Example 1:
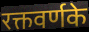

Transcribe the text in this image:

रक्तवर्णके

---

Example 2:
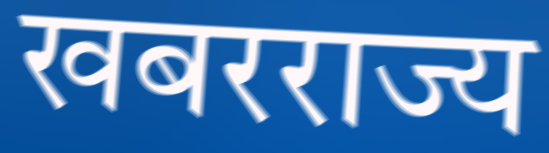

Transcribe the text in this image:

खबरराज्य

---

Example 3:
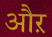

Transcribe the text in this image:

औऱ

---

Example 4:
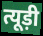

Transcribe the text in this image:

त्यूड़ी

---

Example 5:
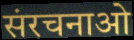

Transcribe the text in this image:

संरचनाओ